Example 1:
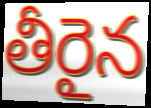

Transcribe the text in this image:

తీరైన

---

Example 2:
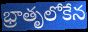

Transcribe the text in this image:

భ్రాతృలోకేన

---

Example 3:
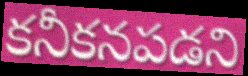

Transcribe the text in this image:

కనీకనపడని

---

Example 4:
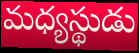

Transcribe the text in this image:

మధ్యస్థుడు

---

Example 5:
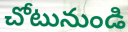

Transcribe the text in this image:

చోటునుండి